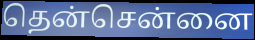
தென்சென்னை